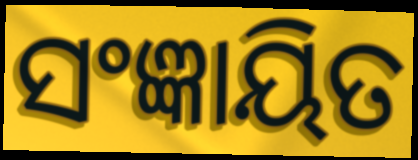
ସଂଜ୍ଞାୟିତ